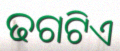
ଢଗଟିଏ